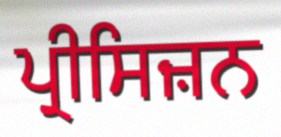
ਪ੍ਰੀਸਿਜ਼ਨ